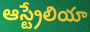
ఆస్ట్రేలియా